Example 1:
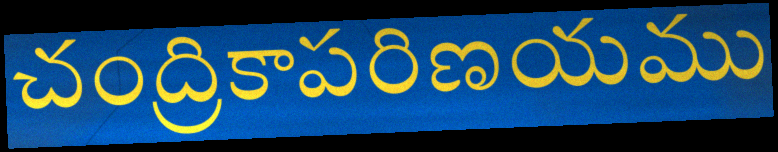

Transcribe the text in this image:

చంద్రికాపరిణయము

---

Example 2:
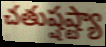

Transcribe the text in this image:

చతుష్షష్ట్యా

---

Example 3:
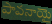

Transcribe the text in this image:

పావనాయై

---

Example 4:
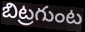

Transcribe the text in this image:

బిట్రగుంట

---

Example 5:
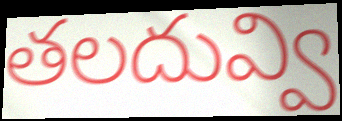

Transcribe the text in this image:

తలదువ్వి